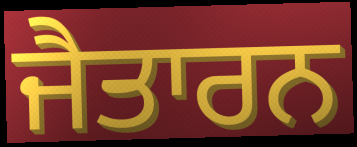
ਜੈਤਾਰਨ